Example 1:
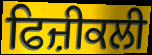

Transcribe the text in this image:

ਫਿਜ਼ੀਕਲੀ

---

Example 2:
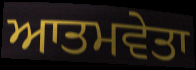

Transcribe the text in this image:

ਆਤਮਵੇਤਾ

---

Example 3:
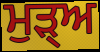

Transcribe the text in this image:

ਮੁਡ਼੍ਅ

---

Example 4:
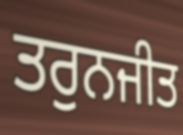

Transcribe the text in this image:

ਤਰੁਨਜੀਤ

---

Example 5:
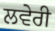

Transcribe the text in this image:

ਲਵੇਰੀ